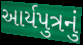
આર્યપુત્રનું